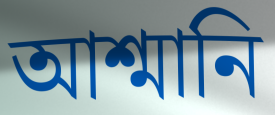
আশ্মানি